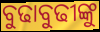
ବୁଢାବୁଢୀଙ୍କୁ